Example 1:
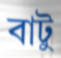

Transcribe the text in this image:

বাটু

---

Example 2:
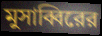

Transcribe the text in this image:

মুসাব্বিরের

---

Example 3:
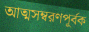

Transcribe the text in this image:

আত্মসম্বরণপূর্বক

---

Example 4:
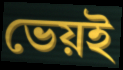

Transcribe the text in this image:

ভেয়ই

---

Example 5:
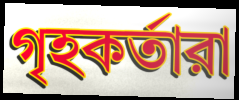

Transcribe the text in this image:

গৃহকর্তারা